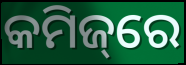
କମିଜ୍‌ରେ